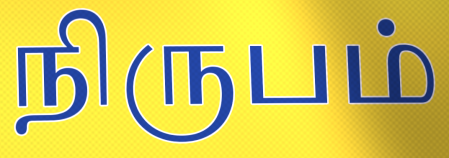
நிருபம்